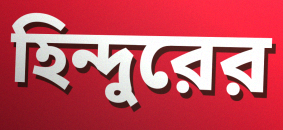
হিন্দুরের